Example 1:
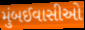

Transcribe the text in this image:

મુંબઈવાસીઓ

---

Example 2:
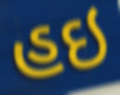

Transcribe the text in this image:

હઇ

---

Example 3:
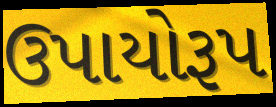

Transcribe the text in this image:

ઉપાયોરૂપ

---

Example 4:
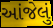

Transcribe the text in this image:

આંજેલું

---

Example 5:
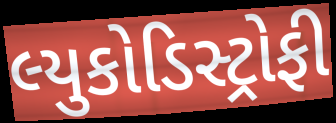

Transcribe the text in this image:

લ્યુકોડિસ્ટ્રોફી